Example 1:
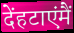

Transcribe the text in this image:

देंहटाएंमैं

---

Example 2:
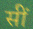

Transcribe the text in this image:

सीं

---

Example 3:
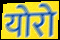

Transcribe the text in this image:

योरो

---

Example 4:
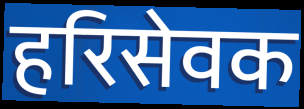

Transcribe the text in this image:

हरिसेवक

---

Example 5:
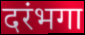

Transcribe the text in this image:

दरंभगा